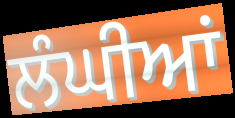
ਲੰਘੀਆਂ